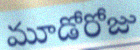
మూడోరోజు